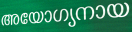
അയോഗ്യനായ